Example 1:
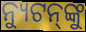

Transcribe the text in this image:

ନ୍ୟୁଟନ୍‌ଙ୍କୁ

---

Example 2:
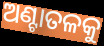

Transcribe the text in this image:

ଅଣ୍ଟାତଳକୁ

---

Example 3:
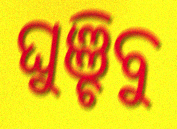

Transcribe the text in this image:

ଘୁଞ୍ଚିବୁ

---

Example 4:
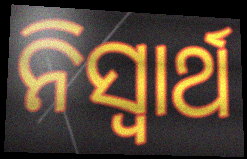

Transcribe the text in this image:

ନିସ୍ୱାର୍ଥ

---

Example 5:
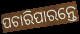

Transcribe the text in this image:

ପଚାରିପାରନ୍ତେ